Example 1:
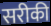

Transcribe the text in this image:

सरीकी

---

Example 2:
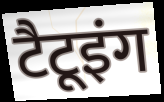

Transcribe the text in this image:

टैटूइंग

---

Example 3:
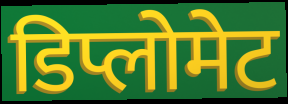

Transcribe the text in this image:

डिप्लोमेट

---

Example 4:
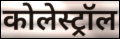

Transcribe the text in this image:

कोलेस्ट्रॉल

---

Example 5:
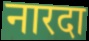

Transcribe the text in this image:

नारदा